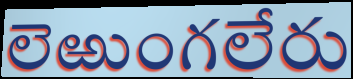
లెఱుంగలేరు